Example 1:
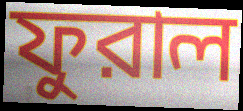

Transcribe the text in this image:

ফুরাল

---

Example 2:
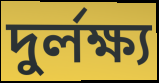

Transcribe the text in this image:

দুর্লক্ষ্য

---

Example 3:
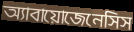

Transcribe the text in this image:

অ্যাবায়োজেনেসিস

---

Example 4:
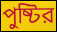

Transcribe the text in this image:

পুষ্টির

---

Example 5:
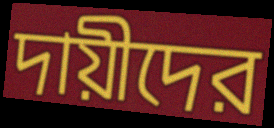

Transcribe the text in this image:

দায়ীদের